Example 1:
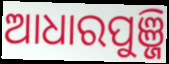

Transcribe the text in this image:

ଆଧାରପୁଞ୍ଜି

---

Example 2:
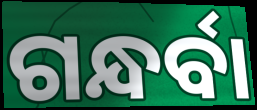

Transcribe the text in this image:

ଗନ୍ଧର୍ବା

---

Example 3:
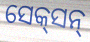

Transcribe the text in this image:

ସେକ୍‌ସନ୍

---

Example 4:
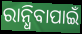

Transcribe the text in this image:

ରାନ୍ଧିବାପାଇଁ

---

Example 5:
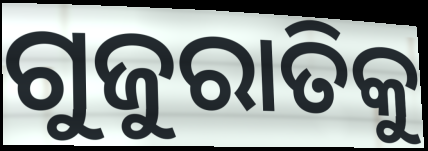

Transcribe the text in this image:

ଗୁଜୁରାତିକୁ